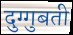
दुग्गुबती